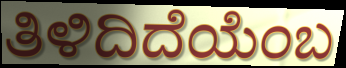
ತಿಳಿದಿದೆಯೆಂಬ